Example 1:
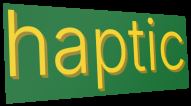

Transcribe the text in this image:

haptic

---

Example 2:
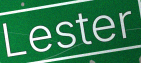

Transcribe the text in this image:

Lester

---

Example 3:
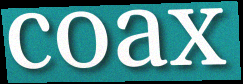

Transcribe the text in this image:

coax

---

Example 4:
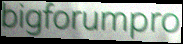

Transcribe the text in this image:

bigforumpro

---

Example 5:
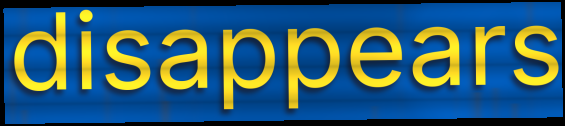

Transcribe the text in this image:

disappears